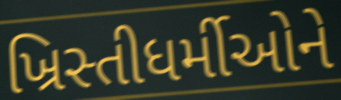
ખ્રિસ્તીધર્મીઓને